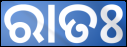
ରାତଃ